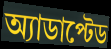
অ্যাডাপ্টেড